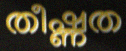
തീഷ്ണത